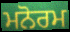
ਮਨੋਰਮ